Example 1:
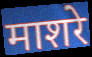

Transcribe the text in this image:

माशरे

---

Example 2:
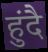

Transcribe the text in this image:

हुंदै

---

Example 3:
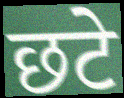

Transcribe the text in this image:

छटे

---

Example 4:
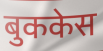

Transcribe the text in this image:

बुककेस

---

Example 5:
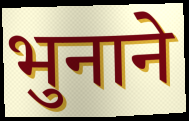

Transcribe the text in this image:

भुनाने